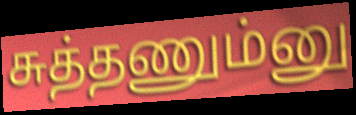
சுத்தணும்னு